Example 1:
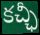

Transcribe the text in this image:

కచ్ఛీ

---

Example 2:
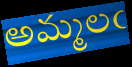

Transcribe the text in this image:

అమ్మలఁ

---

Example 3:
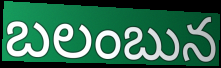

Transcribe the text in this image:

బలంబున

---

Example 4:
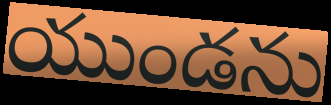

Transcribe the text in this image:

యుండను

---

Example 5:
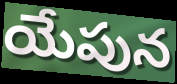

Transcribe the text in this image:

యేపున